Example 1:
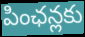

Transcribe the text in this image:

పింఛన్లకు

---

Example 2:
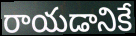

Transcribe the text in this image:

రాయడానికే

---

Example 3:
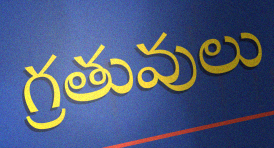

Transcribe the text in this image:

గ్రతువులు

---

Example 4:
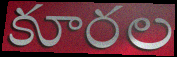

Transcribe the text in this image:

కూరల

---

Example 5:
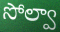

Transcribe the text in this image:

సోల్వా